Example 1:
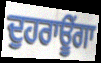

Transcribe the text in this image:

ਦੁਹਰਾਊਂਗਾ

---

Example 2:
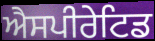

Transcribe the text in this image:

ਐਸਪੀਰੇਟਿਡ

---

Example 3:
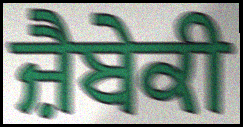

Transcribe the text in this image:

ਜ਼ੈਬੇਕੀ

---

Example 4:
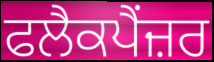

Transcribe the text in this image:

ਫਲੈਕਪੈਂਜ਼ਰ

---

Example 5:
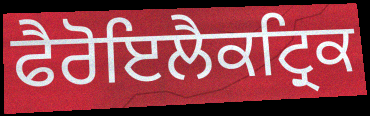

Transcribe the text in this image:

ਫੈਰੋਇਲੈਕਟ੍ਰਿਕ